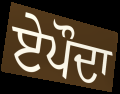
ਏਪੌਦਾ